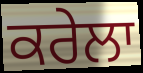
ਕਰੇਲਾ